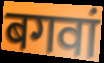
बगवां